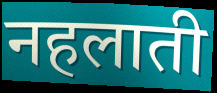
नहलाती